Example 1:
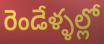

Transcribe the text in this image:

రెండేళ్ళల్లో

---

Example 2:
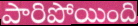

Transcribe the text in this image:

పారిపోయింది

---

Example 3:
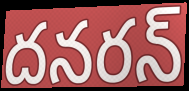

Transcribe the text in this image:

దనరన్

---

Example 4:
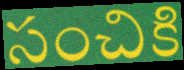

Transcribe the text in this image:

సంచికి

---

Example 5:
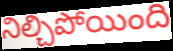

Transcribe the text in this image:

నిల్చిపోయింది